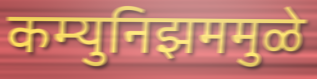
कम्युनिझममुळे